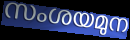
സംശയമുന